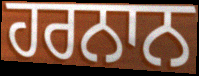
ਹਰਨਾਨ